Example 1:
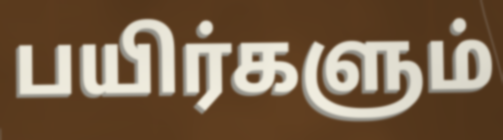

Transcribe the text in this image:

பயிர்களும்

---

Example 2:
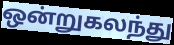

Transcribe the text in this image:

ஒன்றுகலந்து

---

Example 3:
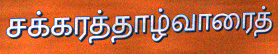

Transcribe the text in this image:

சக்கரத்தாழ்வாரைத்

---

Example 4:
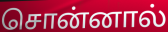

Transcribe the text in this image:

சொன்னால்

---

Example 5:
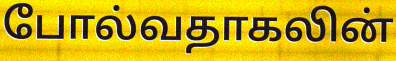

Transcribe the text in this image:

போல்வதாகலின்